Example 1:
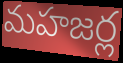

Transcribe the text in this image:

మహజర్ల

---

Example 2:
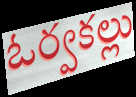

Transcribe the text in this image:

ఓర్వకల్లు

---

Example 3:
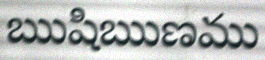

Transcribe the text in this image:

ఋషిఋణము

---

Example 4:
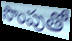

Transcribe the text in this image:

సొంపుతో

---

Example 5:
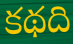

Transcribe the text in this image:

కథది